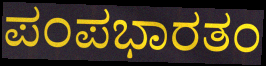
ಪಂಪಭಾರತಂ